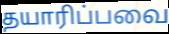
தயாரிப்பவை